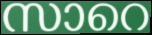
സാറെ